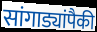
सांगाड्यांपैकी